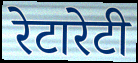
रेटारेटी